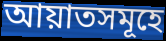
আয়াতসমূহে